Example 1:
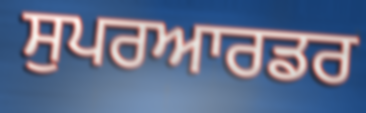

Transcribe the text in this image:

ਸੁਪਰਆਰਡਰ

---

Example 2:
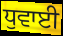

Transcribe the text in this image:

ਧੁਵਾਈ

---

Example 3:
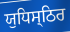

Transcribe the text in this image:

ਯੁਧਿਸ੍ਠਿਰ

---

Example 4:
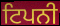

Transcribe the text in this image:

ਟਿਪਨੀ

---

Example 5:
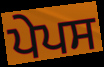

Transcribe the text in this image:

ਪੇਪਸ